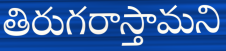
తిరుగరాస్తామని